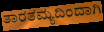
ತಾರತಮ್ಯದಿಂದಾಗಿ